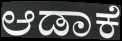
ಆಡಾಕೆ